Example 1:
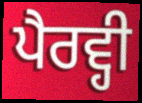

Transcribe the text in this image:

ਪੈਰਵ੍ਹੀ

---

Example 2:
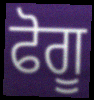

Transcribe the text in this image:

ਫੋਗੂ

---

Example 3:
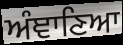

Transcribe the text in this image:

ਅੰਞਾਣਿਆ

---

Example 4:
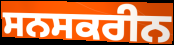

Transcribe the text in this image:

ਸਨਸਕਰੀਨ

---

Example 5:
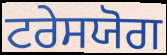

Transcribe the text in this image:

ਟਰੇਸਯੋਗ